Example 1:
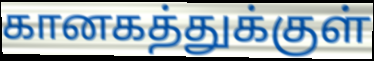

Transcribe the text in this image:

கானகத்துக்குள்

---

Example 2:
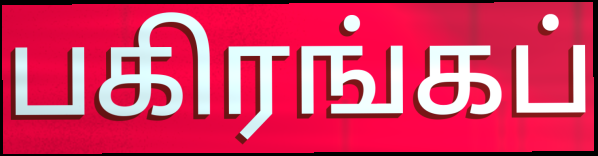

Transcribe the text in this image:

பகிரங்கப்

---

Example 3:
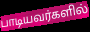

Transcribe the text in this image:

பாடியவர்களில்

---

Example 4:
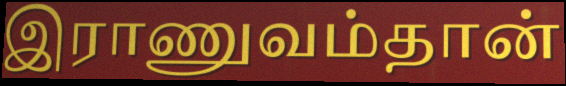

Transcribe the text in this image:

இராணுவம்தான்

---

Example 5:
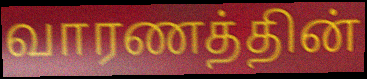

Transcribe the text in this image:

வாரணத்தின்